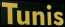
Tunis